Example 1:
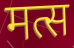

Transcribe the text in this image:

मत्स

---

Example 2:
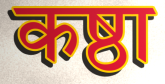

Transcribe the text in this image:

कष्ठा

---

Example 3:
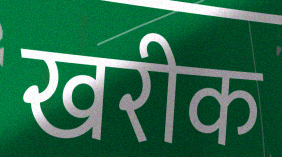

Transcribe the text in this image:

खरीक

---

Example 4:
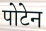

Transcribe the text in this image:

पोटेन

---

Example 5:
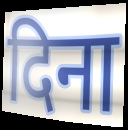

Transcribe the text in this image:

दिना